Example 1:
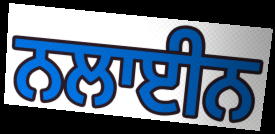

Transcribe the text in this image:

ਨਲਾਈਨ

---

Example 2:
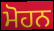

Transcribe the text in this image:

ਮੋਹਨ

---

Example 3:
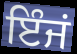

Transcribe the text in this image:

ਇੰਜਂ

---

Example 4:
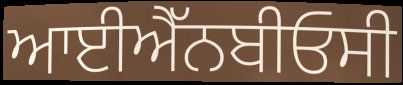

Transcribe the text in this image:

ਆਈਐੱਨਬੀਓਸੀ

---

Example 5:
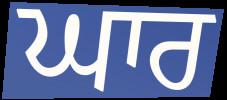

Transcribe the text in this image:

ਘਾਰ